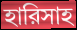
হারিসাহ